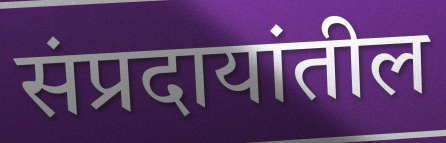
संप्रदायांतील